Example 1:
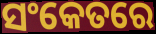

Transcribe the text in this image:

ସଂକେତରେ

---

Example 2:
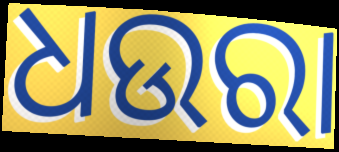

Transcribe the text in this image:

ଧଉରା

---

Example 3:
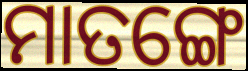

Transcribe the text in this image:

ମାତଙ୍ଗେ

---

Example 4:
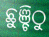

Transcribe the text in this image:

ଛୁଞ୍ଚିଠୁ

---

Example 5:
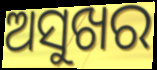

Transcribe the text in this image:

ଅସୁଖର